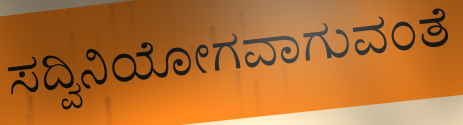
ಸದ್ವಿನಿಯೋಗವಾಗುವಂತೆ